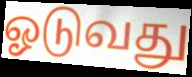
ஓடுவது